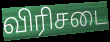
விரிசடை